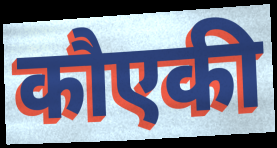
कौएकी